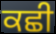
ਕਛੀ